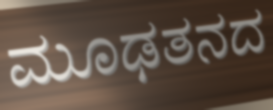
ಮೂಢತನದ